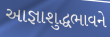
આજ્ઞાશુદ્ધભાવને